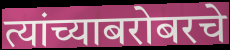
त्यांच्याबरोबरचे